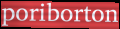
poriborton